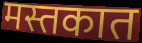
मस्तकात